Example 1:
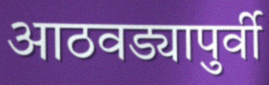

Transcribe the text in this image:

आठवड्यापुर्वी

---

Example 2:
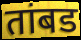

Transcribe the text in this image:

तांबड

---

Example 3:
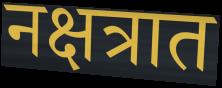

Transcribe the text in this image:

नक्षत्रात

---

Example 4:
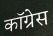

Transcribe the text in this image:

कॉग्रेस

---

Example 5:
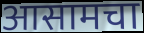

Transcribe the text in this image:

आसामचा